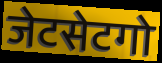
जेटसेटगो